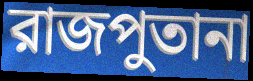
রাজপুতানা